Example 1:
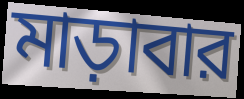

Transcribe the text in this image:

মাড়াবার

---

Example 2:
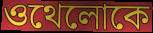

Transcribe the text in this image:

ওথেলোকে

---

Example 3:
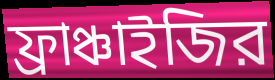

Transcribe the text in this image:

ফ্রাঞ্চাইজির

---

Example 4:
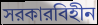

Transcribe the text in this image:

সরকারবিহীন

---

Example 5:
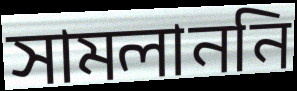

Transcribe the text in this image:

সামলাননি